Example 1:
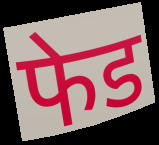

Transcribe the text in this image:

फेड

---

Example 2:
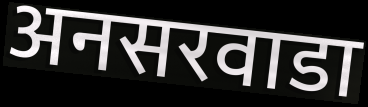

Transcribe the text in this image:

अनसरवाडा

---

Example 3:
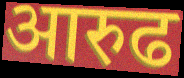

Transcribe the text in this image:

आरुढ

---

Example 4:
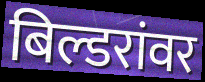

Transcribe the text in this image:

बिल्डरांवर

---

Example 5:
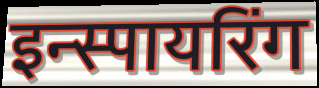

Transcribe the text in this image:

इन्स्पायरिंग